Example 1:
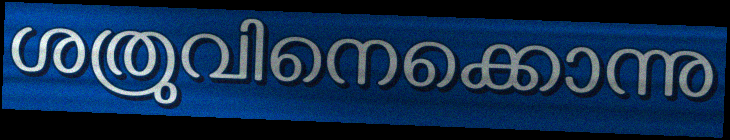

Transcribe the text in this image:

ശത്രുവിനെക്കൊന്നു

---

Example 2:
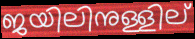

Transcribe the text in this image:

ജയിലിനുള്ളില്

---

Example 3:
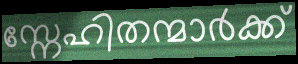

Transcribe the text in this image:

സ്നേഹിതന്മാർക്ക്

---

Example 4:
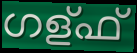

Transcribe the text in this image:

ഗള്ഫ്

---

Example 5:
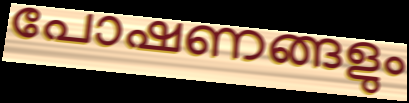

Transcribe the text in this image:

പോഷണങ്ങളും